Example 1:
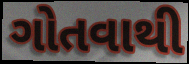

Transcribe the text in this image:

ગોતવાથી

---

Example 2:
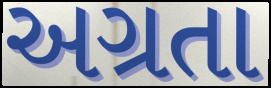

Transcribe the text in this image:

અગ્રતા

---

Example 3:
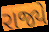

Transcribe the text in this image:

રાજ્યે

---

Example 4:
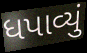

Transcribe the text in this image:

ધપાવ્યું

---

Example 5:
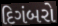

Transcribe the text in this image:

દિગંબરો